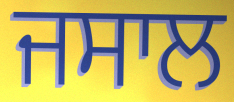
ਜਸਾਲ